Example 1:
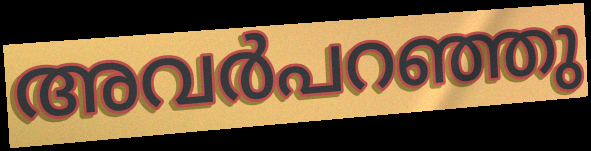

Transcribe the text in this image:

അവർപറഞ്ഞു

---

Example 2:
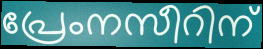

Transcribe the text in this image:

പ്രേംനസീറിന്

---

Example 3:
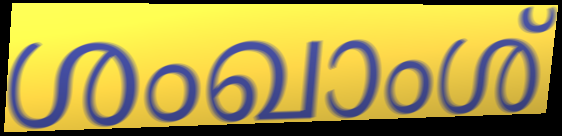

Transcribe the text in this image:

ശംഖാംശ്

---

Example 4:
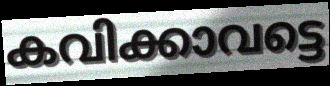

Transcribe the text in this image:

കവിക്കാവട്ടെ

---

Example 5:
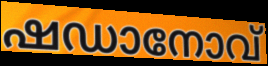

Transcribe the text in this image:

ഷഡാനോവ്